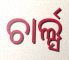
ଚାର୍ଲ୍ସ